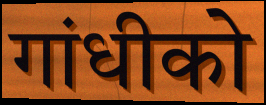
गांधीको